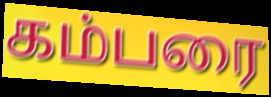
கம்பரை